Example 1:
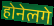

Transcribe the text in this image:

होनेलगे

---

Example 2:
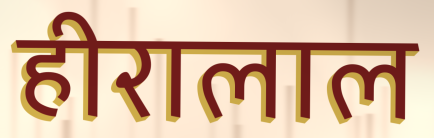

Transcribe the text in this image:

हीरालाल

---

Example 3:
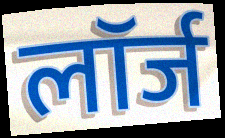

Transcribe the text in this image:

लॉर्ज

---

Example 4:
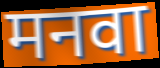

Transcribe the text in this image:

मनवा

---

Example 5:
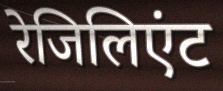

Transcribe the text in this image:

रेजिलिएंट